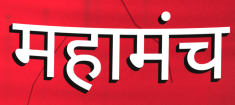
महामंच